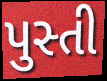
પુસ્તી